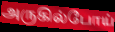
அருகில்போய்